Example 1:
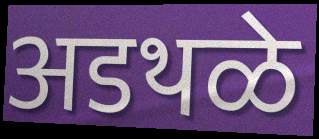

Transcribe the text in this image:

अडथळे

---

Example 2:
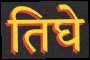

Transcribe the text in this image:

तिघे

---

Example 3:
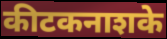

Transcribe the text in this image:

कीटकनाशके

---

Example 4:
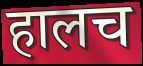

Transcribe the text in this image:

हालच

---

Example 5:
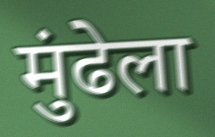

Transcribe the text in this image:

मुंढेला